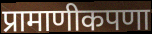
प्रामाणीकपणा